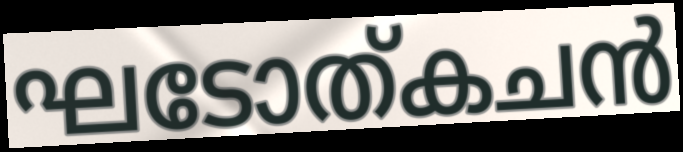
ഘടോത്കചൻ